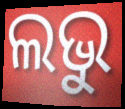
ଲଭୁ